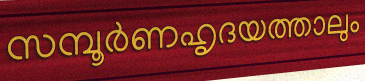
സമ്പൂർണഹൃദയത്താലും